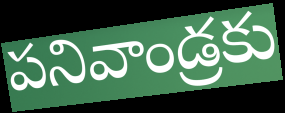
పనివాండ్రకు